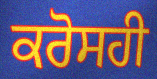
ਕਰੋਸਹੀ